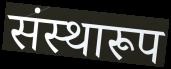
संस्थारूप